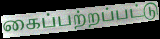
கைப்பற்றப்பட்டு